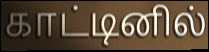
காட்டினில்